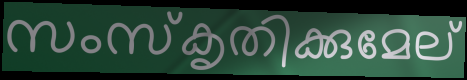
സംസ്കൃതിക്കുമേല്